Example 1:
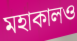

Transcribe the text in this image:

মহাকালও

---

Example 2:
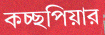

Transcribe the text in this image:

কচ্ছপিয়ার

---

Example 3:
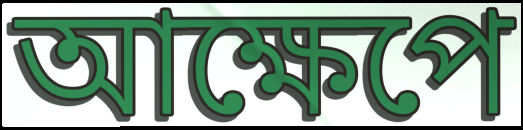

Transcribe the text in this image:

আক্ষেপে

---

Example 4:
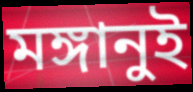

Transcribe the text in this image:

মঙ্গানুই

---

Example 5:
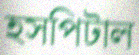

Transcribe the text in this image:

হসপিটাল